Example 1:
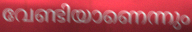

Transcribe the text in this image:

വേണ്ടിയാണെന്നും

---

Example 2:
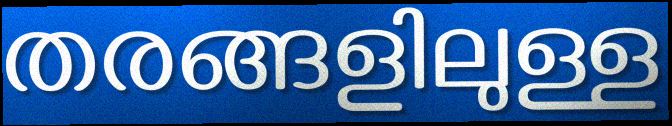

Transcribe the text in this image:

തരങ്ങളിലുള്ള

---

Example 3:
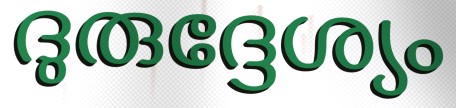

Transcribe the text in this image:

ദുരുദ്ദേശ്യം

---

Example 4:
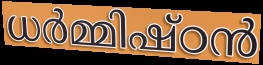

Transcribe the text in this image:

ധർമ്മിഷ്ഠൻ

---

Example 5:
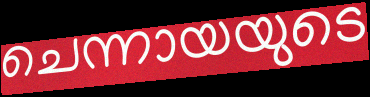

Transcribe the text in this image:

ചെന്നായയുടെ